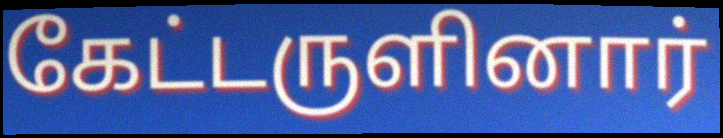
கேட்டருளினார்